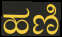
ಹಣಿ